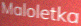
Maloletka